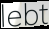
lebt